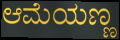
ಆಮೆಯಣ್ಣ